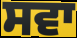
ਸਵਾ